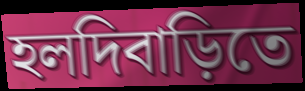
হলদিবাড়িতে